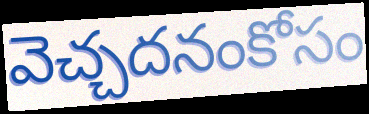
వెచ్చదనంకోసం